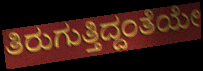
ತಿರುಗುತ್ತಿದ್ದಂತೆಯೇ